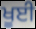
ਖੂਈ